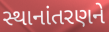
સ્થાનાંતરણને